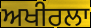
ਅਖੀਰਲਾ